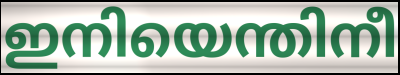
ഇനിയെന്തിനീ